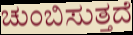
ಚುಂಬಿಸುತ್ತದೆ